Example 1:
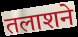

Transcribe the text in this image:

तलाशने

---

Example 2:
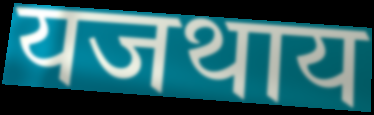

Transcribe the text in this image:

यजथाय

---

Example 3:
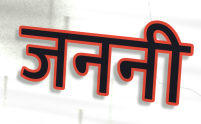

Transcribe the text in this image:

जननी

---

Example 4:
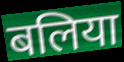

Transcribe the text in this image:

बलिया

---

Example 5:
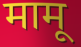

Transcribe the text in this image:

मामू